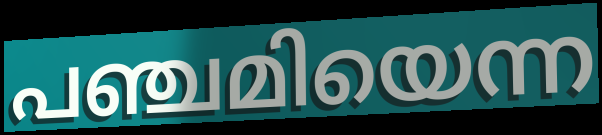
പഞ്ചമിയെന്ന